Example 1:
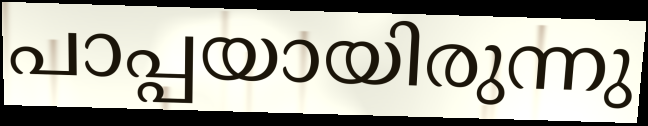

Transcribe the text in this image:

പാപ്പയായിരുന്നു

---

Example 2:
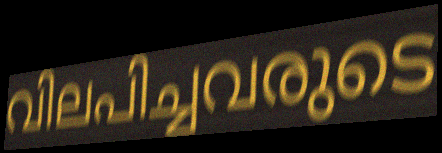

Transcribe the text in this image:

വിലപിച്ചവരുടെ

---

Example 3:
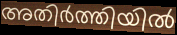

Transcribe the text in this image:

അതിർത്തിയിൽ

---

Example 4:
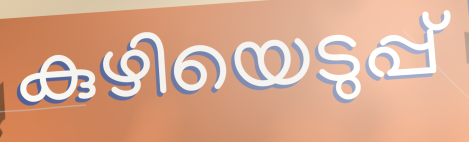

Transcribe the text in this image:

കുഴിയെടുപ്പ്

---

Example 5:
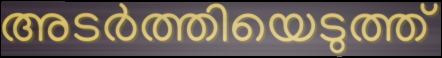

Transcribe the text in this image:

അടർത്തിയെടുത്ത്